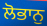
ਲੋਭਾਨੁ